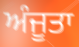
ਅੰਜੂਤਾ